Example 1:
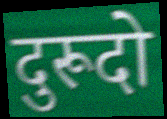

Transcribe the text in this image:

दुरूदो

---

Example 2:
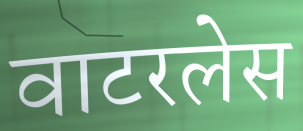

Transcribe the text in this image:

वाटरलेस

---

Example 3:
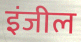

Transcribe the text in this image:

इंजील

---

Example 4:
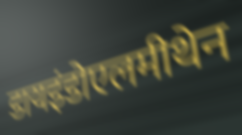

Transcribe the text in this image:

डायइंडोएलमीथेन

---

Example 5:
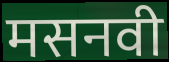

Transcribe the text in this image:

मसनवी